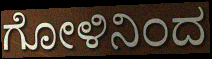
ಗೋಳಿನಿಂದ